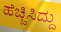
ಹೆಚ್ಚಿಸಿದ್ದು